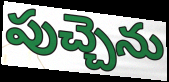
పుచ్చెను